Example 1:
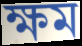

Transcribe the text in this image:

ক্ষম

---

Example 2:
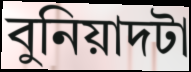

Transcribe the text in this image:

বুনিয়াদটা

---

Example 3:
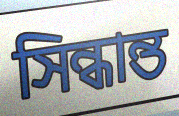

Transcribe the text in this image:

সিন্ধান্ত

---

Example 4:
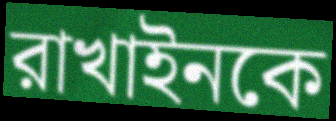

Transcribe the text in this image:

রাখাইনকে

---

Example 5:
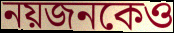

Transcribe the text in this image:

নয়জনকেও